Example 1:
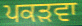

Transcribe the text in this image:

ਪਕੜਵਾ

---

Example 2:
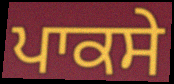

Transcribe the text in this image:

ਪਾਕਸੇ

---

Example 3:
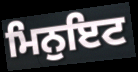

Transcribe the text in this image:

ਮਿਨੁਇਟ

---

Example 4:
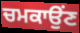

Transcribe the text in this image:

ਚਮਕਾਉਂਣ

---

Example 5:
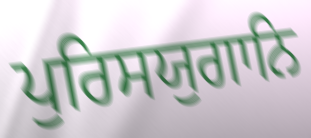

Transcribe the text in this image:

ਪੁਰਿਸਯੁਗਾਨਿ